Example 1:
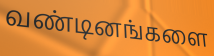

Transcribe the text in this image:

வண்டினங்களை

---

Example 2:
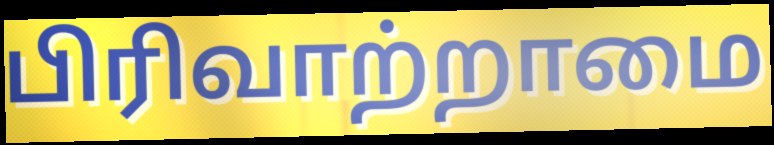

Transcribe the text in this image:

பிரிவாற்றாமை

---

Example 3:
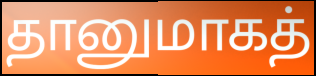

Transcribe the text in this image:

தானுமாகத்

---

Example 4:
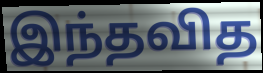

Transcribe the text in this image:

இந்தவித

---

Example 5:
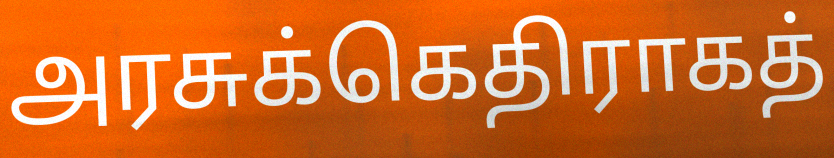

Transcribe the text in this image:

அரசுக்கெதிராகத்